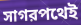
সাগরপথেই